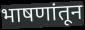
भाषणांतून